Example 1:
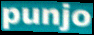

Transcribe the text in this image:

punjo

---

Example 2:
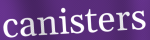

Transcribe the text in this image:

canisters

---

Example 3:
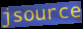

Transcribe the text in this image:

jsource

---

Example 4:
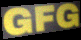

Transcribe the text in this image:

GFG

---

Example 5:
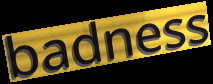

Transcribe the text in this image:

badness